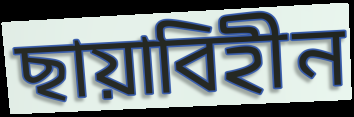
ছায়াবিহীন